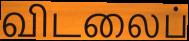
விடலைப்